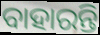
ବାହାରନ୍ତି